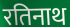
रतिनाथ